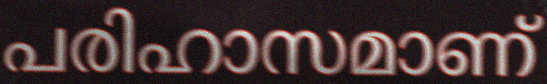
പരിഹാസമാണ്